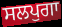
ਸਲਪੁਗਾ